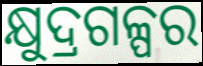
କ୍ଷୁଦ୍ରଗଳ୍ପର